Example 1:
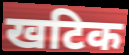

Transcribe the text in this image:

खटिक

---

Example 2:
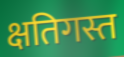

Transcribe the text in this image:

क्षतिगस्त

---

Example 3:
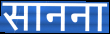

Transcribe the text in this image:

सानना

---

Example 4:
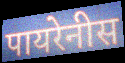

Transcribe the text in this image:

पायरेनीस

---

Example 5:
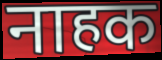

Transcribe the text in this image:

नाहक